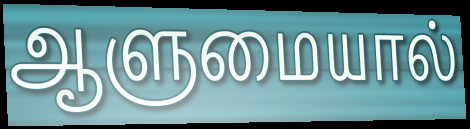
ஆளுமையால்